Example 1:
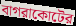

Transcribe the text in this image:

বাগরাকোটের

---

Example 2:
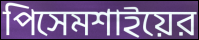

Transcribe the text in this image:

পিসেমশাইয়ের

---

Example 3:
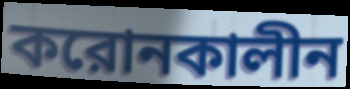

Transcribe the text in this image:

করোনকালীন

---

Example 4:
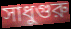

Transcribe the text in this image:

সাধুগুরু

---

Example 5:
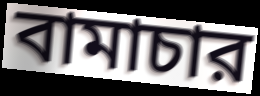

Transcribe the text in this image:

বামাচার